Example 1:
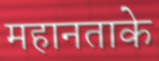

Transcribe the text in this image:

महानताके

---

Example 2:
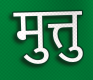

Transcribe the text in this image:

मुत्तु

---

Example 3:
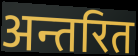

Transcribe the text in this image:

अन्तरित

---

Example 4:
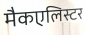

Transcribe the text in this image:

मैकएलिस्टर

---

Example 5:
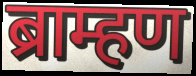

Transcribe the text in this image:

ब्राम्हण